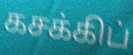
கசக்கிப்